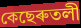
কেছেৰুতলী